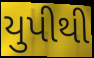
યુપીથી